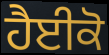
ਹੈਈਕੋ